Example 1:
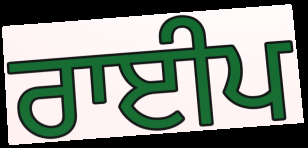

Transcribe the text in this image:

ਰਾਈਪ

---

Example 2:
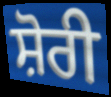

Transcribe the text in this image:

ਸ਼ੋਰੀ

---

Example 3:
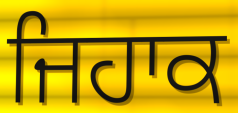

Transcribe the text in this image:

ਜਿਹਾਕ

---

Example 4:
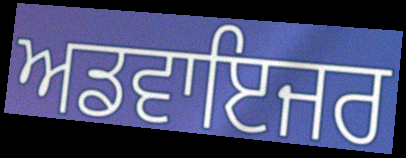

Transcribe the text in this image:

ਅਡਵਾਇਜਰ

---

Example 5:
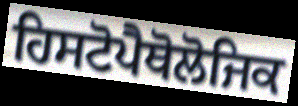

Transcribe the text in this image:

ਹਿਸਟੋਪੈਥੋਲੋਜਿਕ